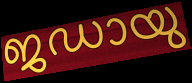
ജഡായു